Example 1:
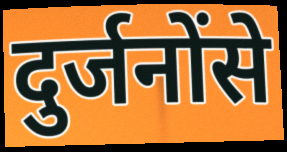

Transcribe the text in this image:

दुर्जनोंसे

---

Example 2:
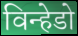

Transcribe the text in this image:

विन्हेडो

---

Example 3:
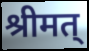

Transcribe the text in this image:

श्रीमत्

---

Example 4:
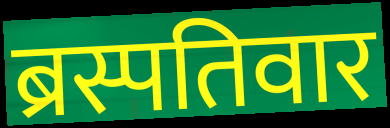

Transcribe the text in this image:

ब्रस्पतिवार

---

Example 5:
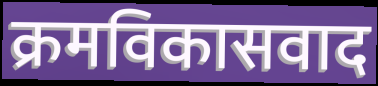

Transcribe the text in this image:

क्रमविकासवाद